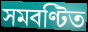
সমবণ্টিত